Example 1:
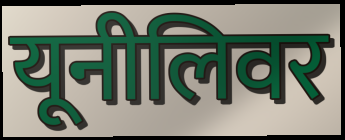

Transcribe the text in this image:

यूनीलिवर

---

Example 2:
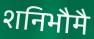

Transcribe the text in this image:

शनिभौमै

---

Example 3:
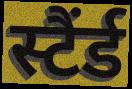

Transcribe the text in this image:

स्टैंर्ड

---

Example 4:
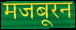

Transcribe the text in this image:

मजबूरन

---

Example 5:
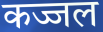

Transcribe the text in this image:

कज्जल